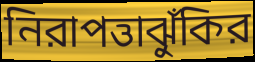
নিরাপত্তাঝুঁকির